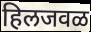
हिलजवळ